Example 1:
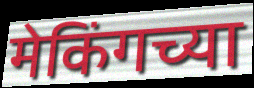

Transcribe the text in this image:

मेकिंगच्या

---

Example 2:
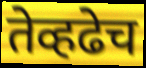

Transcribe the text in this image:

तेव्हढेच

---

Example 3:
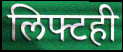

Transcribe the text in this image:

लिफ्टही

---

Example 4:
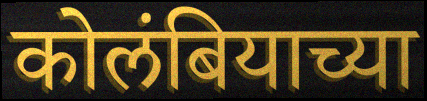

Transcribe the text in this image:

कोलंबियाच्या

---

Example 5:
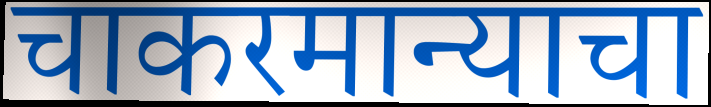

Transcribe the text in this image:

चाकरमान्याचा